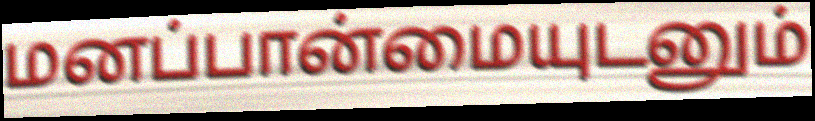
மனப்பான்மையுடனும்